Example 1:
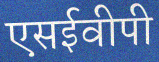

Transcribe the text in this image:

एसईवीपी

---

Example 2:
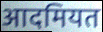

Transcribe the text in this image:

आदमियत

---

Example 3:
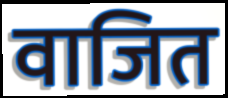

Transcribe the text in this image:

वाजित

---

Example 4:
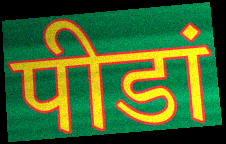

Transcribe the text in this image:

पीडां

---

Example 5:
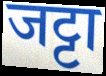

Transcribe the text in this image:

जट्टा